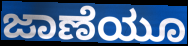
ಜಾಣೆಯೂ